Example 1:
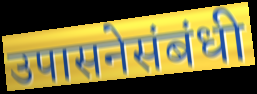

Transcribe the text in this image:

उपासनेसंबंधी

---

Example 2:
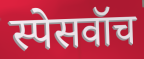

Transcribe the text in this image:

स्पेसवॉच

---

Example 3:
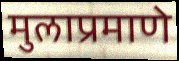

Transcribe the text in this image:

मुलाप्रमाणे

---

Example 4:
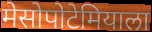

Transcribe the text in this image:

मेसोपोटेमियाला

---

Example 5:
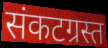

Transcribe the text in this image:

संकटग्रस्त